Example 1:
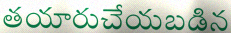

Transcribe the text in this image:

తయారుచేయబడిన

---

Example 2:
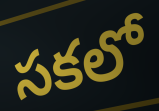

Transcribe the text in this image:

సకలో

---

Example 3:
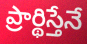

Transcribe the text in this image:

ప్రార్థిస్తేనే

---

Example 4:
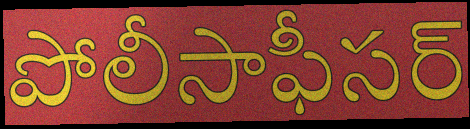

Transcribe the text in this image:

పోలీసాఫీసర్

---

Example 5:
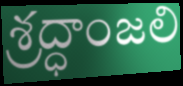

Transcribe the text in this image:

శ్రద్ధాంజలి